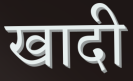
खादी